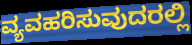
ವ್ಯವಹರಿಸುವುದರಲ್ಲಿ